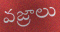
వజ్రాలు